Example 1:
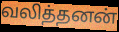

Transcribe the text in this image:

வலித்தனன்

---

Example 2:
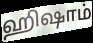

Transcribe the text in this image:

ஹிஷாம்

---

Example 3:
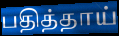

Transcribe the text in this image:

பதித்தாய்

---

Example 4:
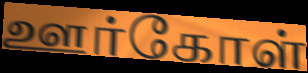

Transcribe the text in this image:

ஊர்கோள்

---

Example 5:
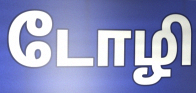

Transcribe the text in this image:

டோழி